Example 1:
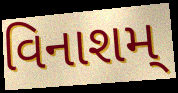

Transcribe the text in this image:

વિનાશમ્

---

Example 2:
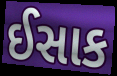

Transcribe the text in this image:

ઈસાક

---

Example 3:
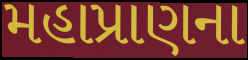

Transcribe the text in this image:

મહાપ્રાણના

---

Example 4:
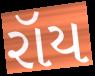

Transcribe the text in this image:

રૉય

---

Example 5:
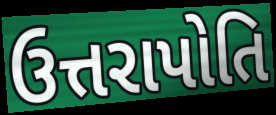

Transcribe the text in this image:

ઉત્તરાપોતિ